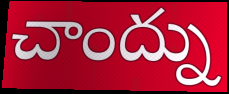
చాంద్ను